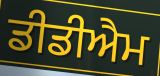
ਡੀਡੀਐਮ